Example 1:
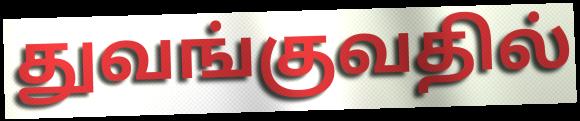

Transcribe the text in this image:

துவங்குவதில்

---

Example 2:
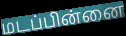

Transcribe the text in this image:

மடப்பின்னை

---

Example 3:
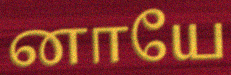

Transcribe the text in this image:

னாயே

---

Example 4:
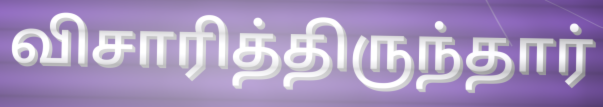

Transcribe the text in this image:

விசாரித்திருந்தார்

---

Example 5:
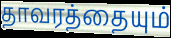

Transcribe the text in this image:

தாவரத்தையும்